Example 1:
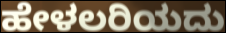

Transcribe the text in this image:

ಹೇಳಲರಿಯದು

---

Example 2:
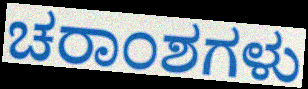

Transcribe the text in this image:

ಚರಾಂಶಗಳು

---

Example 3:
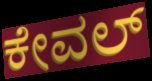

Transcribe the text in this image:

ಕೇವಲ್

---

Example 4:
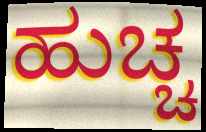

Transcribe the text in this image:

ಹುಚ್ಚ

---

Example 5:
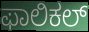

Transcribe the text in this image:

ಫಾಲಿಕಲ್